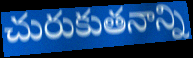
చురుకుతనాన్ని